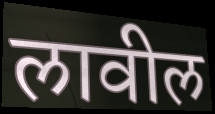
लावील